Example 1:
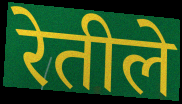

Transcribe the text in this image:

रेतीले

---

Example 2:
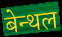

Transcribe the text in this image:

बेन्थल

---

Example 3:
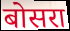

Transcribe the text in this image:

बोसरा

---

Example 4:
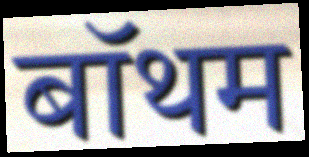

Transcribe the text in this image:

बॉथम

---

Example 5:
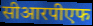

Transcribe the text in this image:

सीआरपीएफ